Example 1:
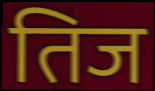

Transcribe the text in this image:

तिज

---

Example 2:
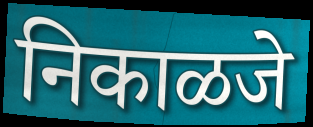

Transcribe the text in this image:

निकाळजे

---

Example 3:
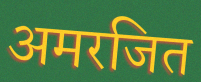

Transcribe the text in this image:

अमरजित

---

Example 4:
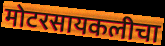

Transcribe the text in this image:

मोटरसायकलीचा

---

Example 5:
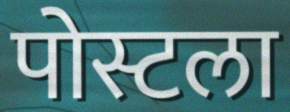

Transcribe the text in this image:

पोस्टला